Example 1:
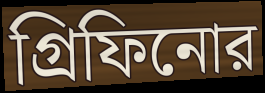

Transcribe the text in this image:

গ্রিফিনোর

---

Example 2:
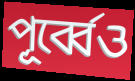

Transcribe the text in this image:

পূর্ব্বেও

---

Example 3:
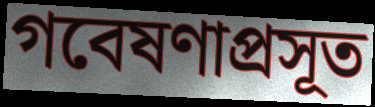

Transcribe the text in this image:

গবেষণাপ্রসূত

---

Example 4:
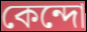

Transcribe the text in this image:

কেন্দো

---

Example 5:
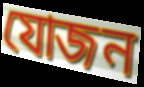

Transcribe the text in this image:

যোজন